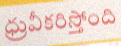
ధ్రువీకరిస్తోంది